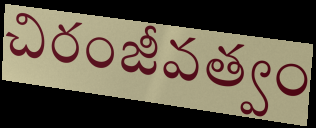
చిరంజీవత్వం